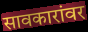
सावकारांवर